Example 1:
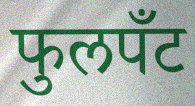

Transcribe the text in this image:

फुलपँट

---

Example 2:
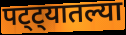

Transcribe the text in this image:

पट्ट्यातल्या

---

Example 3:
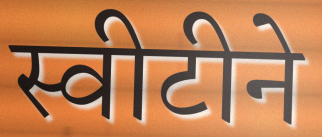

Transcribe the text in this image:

स्वीटीने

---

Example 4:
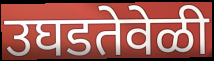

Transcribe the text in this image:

उघडतेवेळी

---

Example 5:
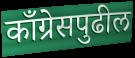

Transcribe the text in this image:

काँग्रेसपुढील